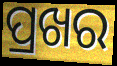
ପ୍ରଖର